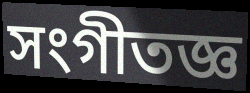
সংগীতজ্ঞ